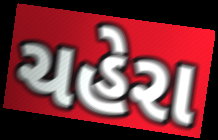
ચહેરા